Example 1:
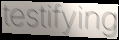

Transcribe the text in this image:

testifying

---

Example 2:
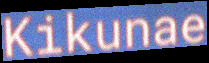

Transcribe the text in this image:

Kikunae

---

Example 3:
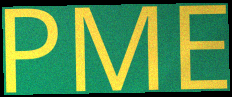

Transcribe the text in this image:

PME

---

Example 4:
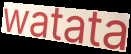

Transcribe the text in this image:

watata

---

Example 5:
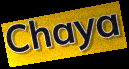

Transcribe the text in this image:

Chaya